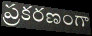
ప్రకరణంగా